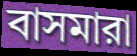
বাসমারা